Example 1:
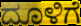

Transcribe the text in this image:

ದೂಳಿಗೆ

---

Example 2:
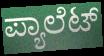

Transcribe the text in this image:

ಪ್ಯಾಲೆಟ್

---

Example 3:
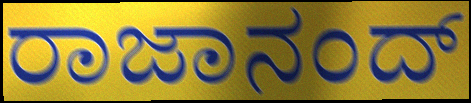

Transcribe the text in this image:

ರಾಜಾನಂದ್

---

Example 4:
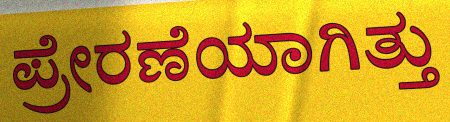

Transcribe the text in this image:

ಪ್ರೇರಣೆಯಾಗಿತ್ತು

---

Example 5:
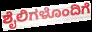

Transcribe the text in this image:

ಶೈಲಿಗಳೊಂದಿಗೆ